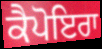
ਕੈਪੋਇਰਾ